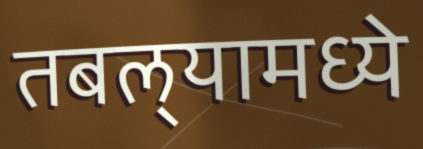
तबल्यामध्ये